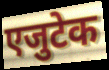
एजुटेक